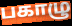
பகாழு